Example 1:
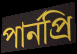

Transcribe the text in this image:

পার্নপ্রি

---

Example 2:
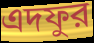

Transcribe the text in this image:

এদফুর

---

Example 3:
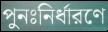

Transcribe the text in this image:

পুনঃনির্ধারণে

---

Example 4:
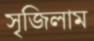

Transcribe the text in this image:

সৃজিলাম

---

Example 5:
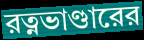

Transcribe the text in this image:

রত্নভাণ্ডারের